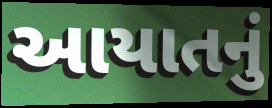
આયાતનું